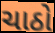
ચાઠો